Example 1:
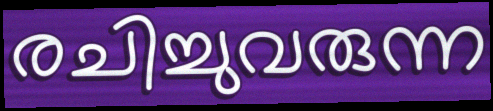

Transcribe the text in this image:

രചിച്ചുവരുന്ന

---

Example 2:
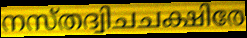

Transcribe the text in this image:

നസ്തദ്വിചചക്ഷിരേ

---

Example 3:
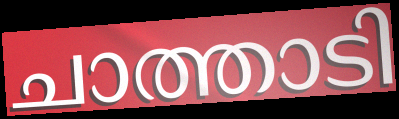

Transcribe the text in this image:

ചാത്താടി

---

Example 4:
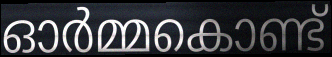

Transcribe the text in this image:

ഓർമ്മകൊണ്ട്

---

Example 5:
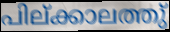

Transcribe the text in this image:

പില്ക്കാലത്തു്